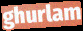
ghurlam